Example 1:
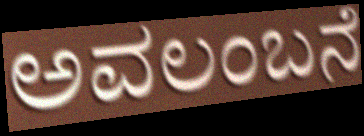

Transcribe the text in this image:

ಅವಲಂಬನೆ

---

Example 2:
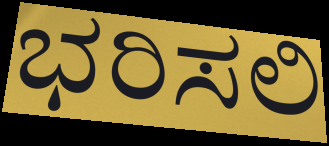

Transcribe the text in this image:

ಭರಿಸಲಿ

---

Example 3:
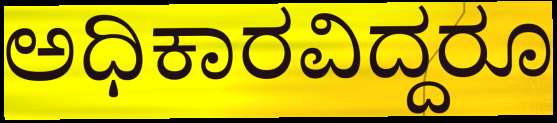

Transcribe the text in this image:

ಅಧಿಕಾರವಿದ್ದರೂ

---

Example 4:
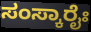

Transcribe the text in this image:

ಸಂಸ್ಕಾರೈಃ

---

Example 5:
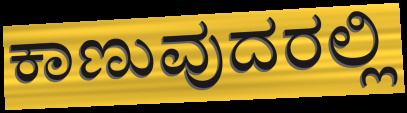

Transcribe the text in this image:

ಕಾಣುವುದರಲ್ಲಿ